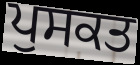
ਪੁਸਕਤ